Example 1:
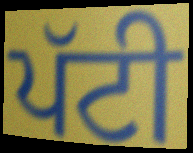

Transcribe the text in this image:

ਪੱਟੀ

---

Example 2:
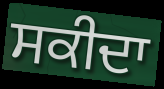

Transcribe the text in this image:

ਸਕੀਦਾ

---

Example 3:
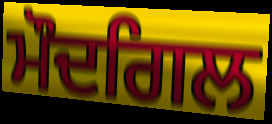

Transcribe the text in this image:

ਮੌਦਗਿਲ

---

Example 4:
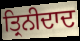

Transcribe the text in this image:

ਤ੍ਰਿਨੀਦਾਦ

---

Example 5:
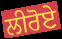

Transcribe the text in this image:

ਲੀਰੋਏ